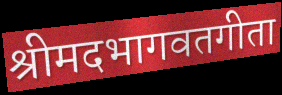
श्रीमदभागवतगीता